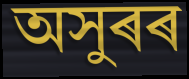
অসুৰৰ